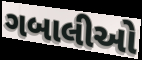
ગબાલીઓ